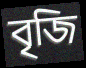
বৃজি